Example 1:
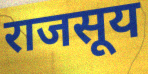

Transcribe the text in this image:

राजसूय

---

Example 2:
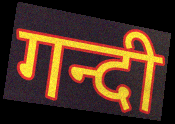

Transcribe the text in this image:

गन्दी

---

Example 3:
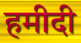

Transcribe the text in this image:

हमीदी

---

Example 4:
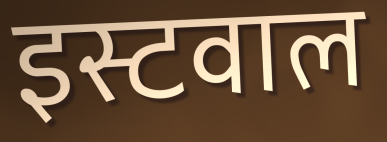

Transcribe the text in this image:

इस्टवाल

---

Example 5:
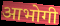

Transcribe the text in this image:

आभोगी